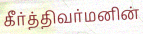
கீர்த்திவர்மனின்